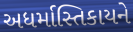
અધર્માસ્તિકાયને